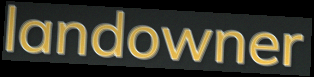
landowner